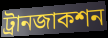
ট্রানজাকশন